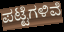
ಪಟ್ಟೆಗಳಿವೆ